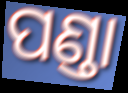
ପଣ୍ଡା